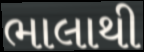
ભાલાથી